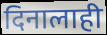
दिनालाही